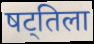
षट्तिला